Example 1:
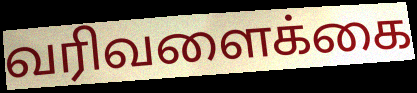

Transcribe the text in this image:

வரிவளைக்கை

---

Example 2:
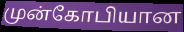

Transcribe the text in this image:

முன்கோபியான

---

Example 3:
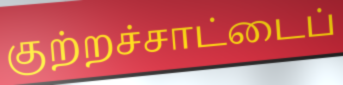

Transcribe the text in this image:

குற்றச்சாட்டைப்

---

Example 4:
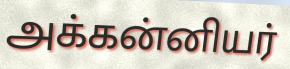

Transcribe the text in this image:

அக்கன்னியர்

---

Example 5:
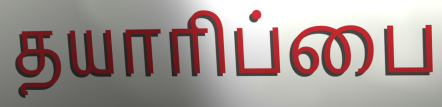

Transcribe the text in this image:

தயாரிப்பை